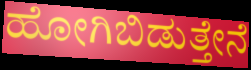
ಹೋಗಿಬಿಡುತ್ತೇನೆ